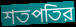
শতপতির